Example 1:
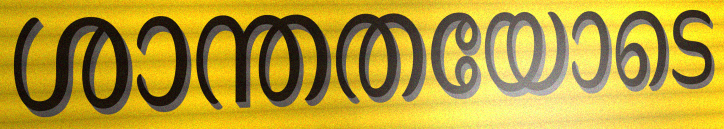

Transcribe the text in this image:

ശാന്തതയോടെ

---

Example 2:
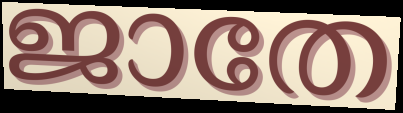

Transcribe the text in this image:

ജാതേ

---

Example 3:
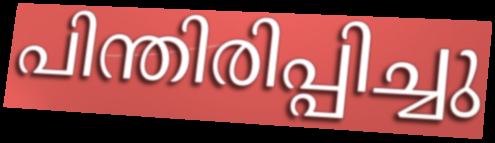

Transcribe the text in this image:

പിന്തിരിപ്പിച്ചു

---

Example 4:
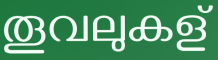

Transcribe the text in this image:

തൂവലുകള്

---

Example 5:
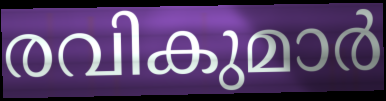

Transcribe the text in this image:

രവികുമാർ